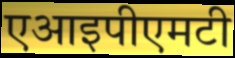
एआइपीएमटी